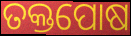
ତକ୍ତପୋଷ